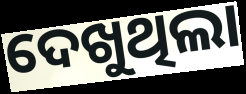
ଦେଖୁଥିଲା